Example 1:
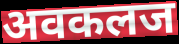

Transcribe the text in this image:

अवकलज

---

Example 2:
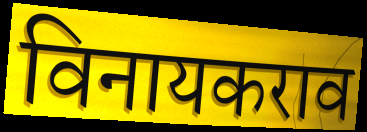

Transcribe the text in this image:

विनायकराव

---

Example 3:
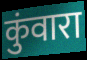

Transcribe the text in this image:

कुंवारा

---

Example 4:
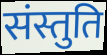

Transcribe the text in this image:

संस्तुति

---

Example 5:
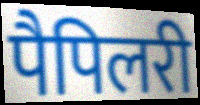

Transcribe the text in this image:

पैपिलरी